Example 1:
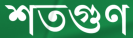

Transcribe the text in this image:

শতগুণ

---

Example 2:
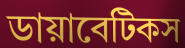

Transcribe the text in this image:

ডায়াবেটিকস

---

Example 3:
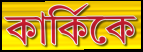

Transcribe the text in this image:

কার্কিকে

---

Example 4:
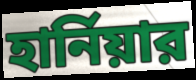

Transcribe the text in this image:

হার্নিয়ার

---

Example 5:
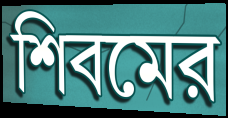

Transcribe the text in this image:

শিবমের